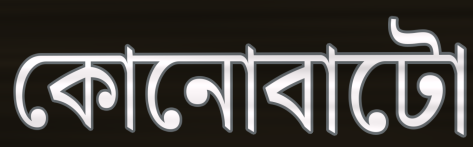
কোনোবাটো